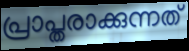
പ്രാപ്തരാക്കുന്നത്